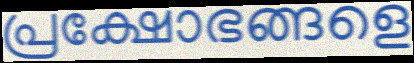
പ്രക്ഷോഭങ്ങളെ